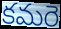
కమరె